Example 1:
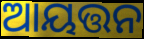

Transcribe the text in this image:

ଆୟତ୍ତନ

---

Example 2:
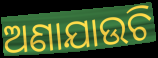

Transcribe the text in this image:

ଅଣାଯାଉଚି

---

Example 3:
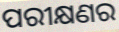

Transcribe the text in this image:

ପରୀକ୍ଷଣର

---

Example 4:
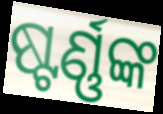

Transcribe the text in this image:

ଷ୍ଟର୍ଣ୍ଣଙ୍କ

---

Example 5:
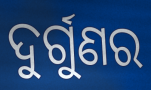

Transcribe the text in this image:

ଦୁର୍ଗୁଣର